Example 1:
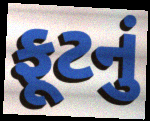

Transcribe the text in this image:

ફૂટનું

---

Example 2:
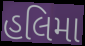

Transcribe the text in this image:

હલિમા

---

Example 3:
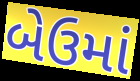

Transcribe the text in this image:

બેઉમાં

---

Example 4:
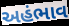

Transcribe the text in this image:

અહંભાવ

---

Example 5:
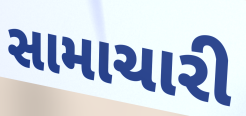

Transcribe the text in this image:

સામાચારી